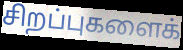
சிறப்புகளைக்